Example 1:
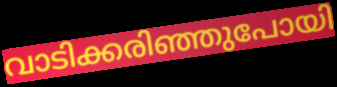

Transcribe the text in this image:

വാടിക്കരിഞ്ഞുപോയി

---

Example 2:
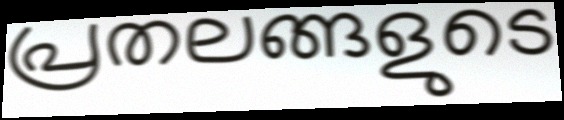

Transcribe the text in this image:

പ്രതലങ്ങളുടെ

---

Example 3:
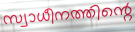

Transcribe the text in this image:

സ്വാധീനത്തിന്റെ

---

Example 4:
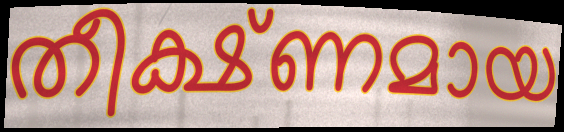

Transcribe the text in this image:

തീക്ഷ്ണമായ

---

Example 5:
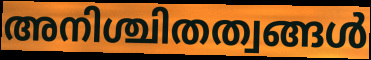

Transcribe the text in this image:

അനിശ്ചിതത്വങ്ങൾ